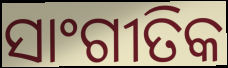
ସାଂଗୀତିକ